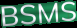
BSMS